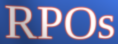
RPOs